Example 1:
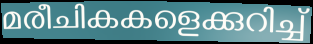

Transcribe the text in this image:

മരീചികകളെക്കുറിച്ച്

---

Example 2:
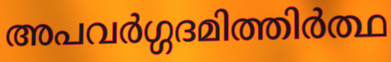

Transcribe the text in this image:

അപവർഗ്ഗദമിത്തിർത്ഥ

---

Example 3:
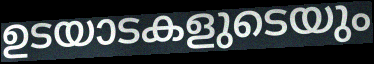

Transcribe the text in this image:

ഉടയാടകളുടെയും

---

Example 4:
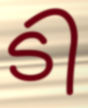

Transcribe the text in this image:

ടി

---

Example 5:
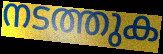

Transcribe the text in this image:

നടത്തുക